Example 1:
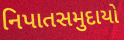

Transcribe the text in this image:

નિપાતસમુદાયો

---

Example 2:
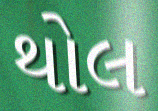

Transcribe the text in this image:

થોલ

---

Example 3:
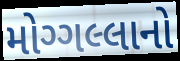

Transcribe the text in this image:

મોગ્ગલ્લાનો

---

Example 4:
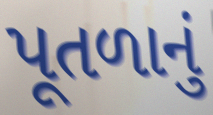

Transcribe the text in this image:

પૂતળાનું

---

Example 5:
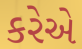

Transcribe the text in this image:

કરેએ